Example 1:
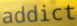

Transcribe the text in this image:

addict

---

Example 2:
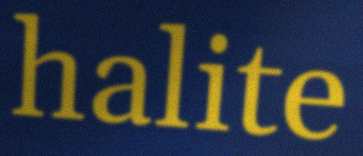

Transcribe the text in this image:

halite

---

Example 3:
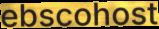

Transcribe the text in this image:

ebscohost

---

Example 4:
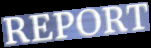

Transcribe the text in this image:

REPORT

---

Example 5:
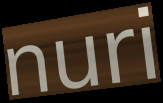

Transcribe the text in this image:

nuri